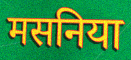
मसनिया